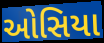
ઓસિયા